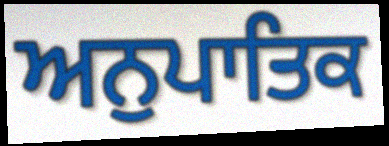
ਅਨੁਪਾਤਿਕ